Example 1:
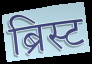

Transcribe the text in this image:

ब्रिस्ट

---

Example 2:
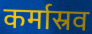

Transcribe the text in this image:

कर्मास्रव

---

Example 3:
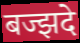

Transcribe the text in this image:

बज्झदे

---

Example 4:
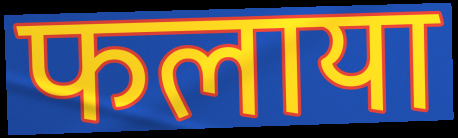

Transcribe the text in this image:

फलाया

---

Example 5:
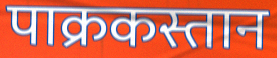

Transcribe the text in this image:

पाक्रकस्तान